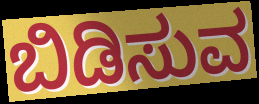
ಬಿಡಿಸುವ